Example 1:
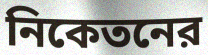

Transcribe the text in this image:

নিকেতনের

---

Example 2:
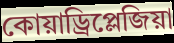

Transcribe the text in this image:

কোয়াড্রিপ্লেজিয়া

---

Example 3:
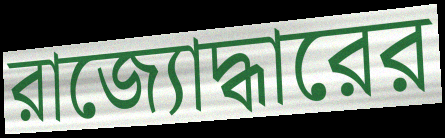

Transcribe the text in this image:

রাজ্যোদ্ধারের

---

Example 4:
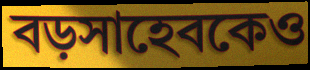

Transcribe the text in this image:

বড়সাহেবকেও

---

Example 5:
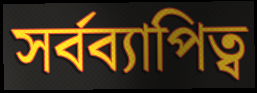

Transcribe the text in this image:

সর্বব্যাপিত্ব